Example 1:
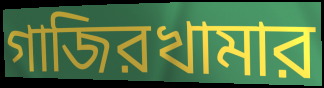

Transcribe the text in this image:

গাজিরখামার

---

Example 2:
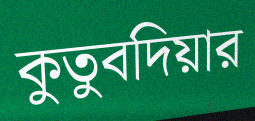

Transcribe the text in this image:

কুতুবদিয়ার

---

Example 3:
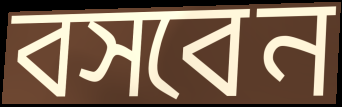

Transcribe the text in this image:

বসবেন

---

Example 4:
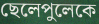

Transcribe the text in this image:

ছেলেপুলেকে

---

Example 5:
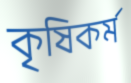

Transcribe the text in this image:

কৃষিকর্ম